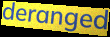
deranged